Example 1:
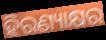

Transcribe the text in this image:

ହିରଣ୍ୟାକ୍ଷର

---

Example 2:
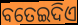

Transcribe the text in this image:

ବତେଇଦିଏ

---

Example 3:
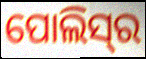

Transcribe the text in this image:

ପୋଲିସ୍‍ର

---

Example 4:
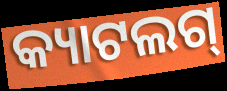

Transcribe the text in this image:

କ୍ୟାଟଲଗ୍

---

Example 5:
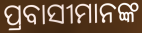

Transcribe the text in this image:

ପ୍ରବାସୀମାନଙ୍କ